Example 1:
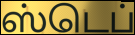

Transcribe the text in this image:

ஸ்டெப்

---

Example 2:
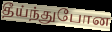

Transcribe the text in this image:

தீய்ந்துபோன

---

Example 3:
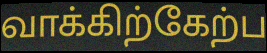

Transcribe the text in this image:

வாக்கிற்கேற்ப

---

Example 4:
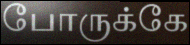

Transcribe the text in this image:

போருக்கே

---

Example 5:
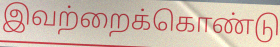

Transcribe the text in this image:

இவற்றைக்கொண்டு